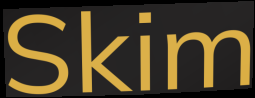
Skim